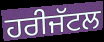
ਹਰੀਜੱਟਲ